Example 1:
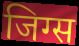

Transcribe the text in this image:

जिग्स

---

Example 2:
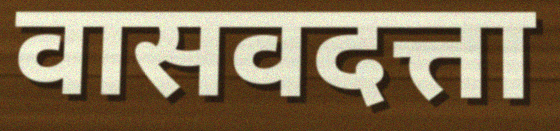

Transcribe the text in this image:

वासवदत्ता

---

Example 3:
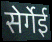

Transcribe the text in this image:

सेर्गेई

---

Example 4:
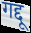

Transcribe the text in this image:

गद्दू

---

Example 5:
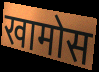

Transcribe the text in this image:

खामोस